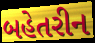
બહેતરીન